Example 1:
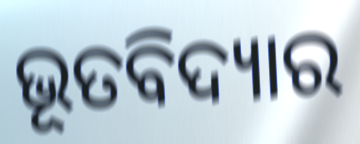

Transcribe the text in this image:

ଭୂତବିଦ୍ୟାର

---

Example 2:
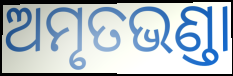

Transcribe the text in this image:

ଅମୃତଭଣ୍ଡା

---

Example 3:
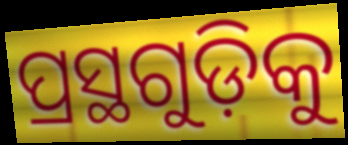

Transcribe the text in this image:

ପ୍ରସ୍ଥଗୁଡ଼ିକୁ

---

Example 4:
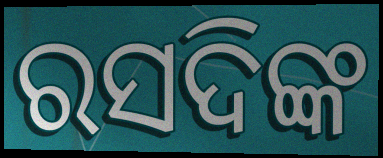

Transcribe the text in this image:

ରସଦିଙ୍କ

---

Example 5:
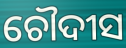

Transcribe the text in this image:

ଚୌଦୀସ